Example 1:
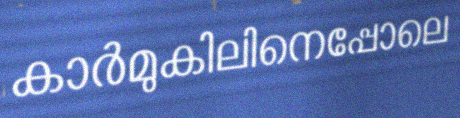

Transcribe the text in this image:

കാർമുകിലിനെപ്പോലെ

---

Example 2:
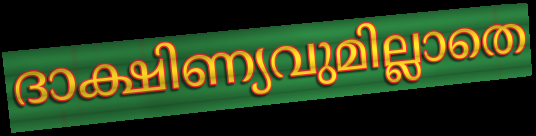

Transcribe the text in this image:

ദാക്ഷിണ്യവുമില്ലാതെ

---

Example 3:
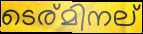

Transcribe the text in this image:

ടെര്മിനല്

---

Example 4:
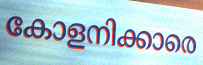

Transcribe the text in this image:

കോളനിക്കാരെ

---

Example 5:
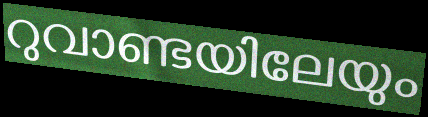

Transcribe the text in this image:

റുവാണ്ടയിലേയും